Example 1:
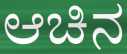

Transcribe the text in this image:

ಆಚಿನ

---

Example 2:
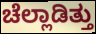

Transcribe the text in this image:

ಚೆಲ್ಲಾಡಿತ್ತು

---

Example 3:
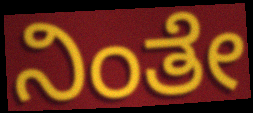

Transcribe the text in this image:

ನಿಂತೇ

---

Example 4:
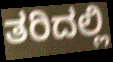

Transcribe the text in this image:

ತರಿದಲ್ಲಿ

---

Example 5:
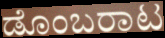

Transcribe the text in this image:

ಡೊಂಬರಾಟ